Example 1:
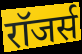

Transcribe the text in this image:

रॉजर्स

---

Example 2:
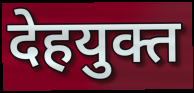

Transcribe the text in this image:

देहयुक्त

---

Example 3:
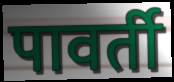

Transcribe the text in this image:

पावर्ती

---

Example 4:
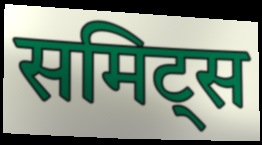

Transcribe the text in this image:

समिट्स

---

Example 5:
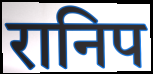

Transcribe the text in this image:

रानिप